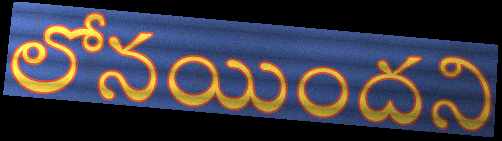
లోనయిందని